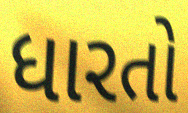
ધારતો